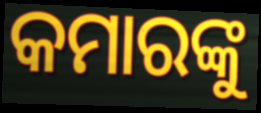
କମାରଙ୍କୁ